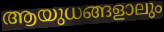
ആയുധങ്ങളാലും